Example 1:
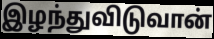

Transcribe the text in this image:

இழந்துவிடுவான்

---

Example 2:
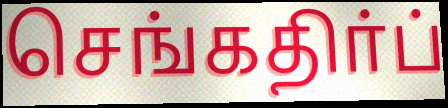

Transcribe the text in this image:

செங்கதிர்ப்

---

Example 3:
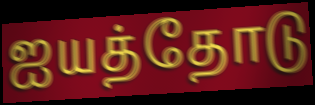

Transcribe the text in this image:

ஐயத்தோடு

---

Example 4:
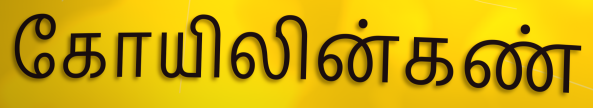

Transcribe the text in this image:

கோயிலின்கண்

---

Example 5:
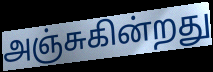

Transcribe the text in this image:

அஞ்சுகின்றது